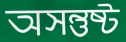
অসন্তুষ্ট